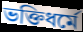
ভক্তিধর্মে